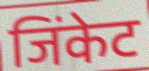
जिंकेट